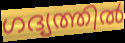
ഗദ്യത്തിൽ